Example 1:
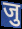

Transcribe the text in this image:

जु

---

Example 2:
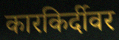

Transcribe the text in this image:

कारकिर्दीवर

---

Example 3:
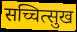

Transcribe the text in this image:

सच्चित्सुख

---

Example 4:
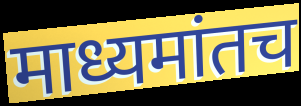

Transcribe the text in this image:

माध्यमांतच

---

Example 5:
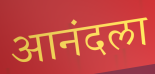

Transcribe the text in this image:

आनंदला